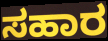
ಸಹಾರ